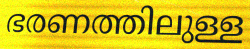
ഭരണത്തിലുള്ള